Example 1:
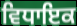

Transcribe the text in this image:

ਵਿਧਾਇਕ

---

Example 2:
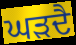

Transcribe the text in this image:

ਘੜਦੈ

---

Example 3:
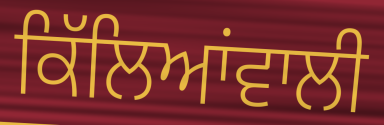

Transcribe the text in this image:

ਕਿੱਲਿਆਂਵਾਲੀ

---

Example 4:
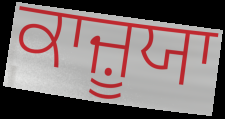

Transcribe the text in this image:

ਕਾਜ਼ੂਯਾ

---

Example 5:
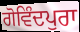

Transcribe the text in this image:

ਗੋਵਿੰਦਪੁਰਾ